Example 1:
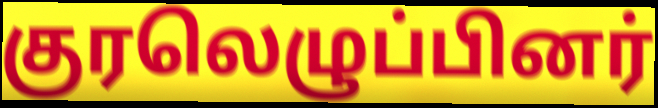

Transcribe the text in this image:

குரலெழுப்பினர்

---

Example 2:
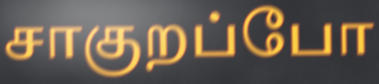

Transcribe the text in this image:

சாகுறப்போ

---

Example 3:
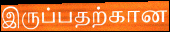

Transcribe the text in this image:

இருப்பதற்கான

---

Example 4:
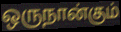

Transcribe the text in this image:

ஒருநான்கும்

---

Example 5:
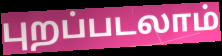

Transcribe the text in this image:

புறப்படலாம்